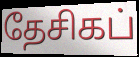
தேசிகப்